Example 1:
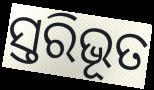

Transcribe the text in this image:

ସ୍ତରିଭୂତ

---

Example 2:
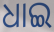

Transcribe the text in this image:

ଧାଇ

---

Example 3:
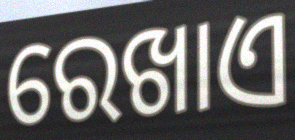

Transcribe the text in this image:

ରେଖାଏ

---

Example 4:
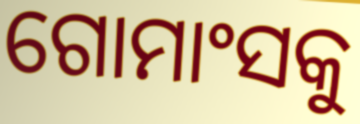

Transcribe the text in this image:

ଗୋମାଂସକୁ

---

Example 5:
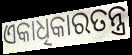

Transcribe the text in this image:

ଏକାଧିକାରତନ୍ତ୍ର